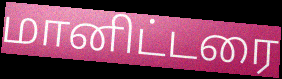
மானிட்டரை